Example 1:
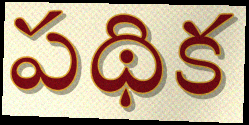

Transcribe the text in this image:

పథిక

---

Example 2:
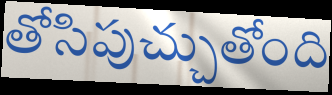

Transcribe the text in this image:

తోసిపుచ్చుతోంది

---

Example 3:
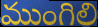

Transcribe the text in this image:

ముంగిలి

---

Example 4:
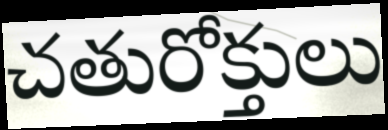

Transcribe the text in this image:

చతురోక్తులు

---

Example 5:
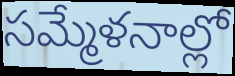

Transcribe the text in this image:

సమ్మేళనాల్లో